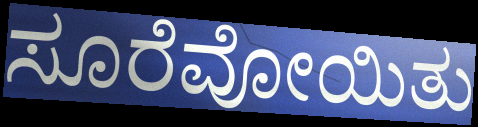
ಸೂರೆವೋಯಿತು